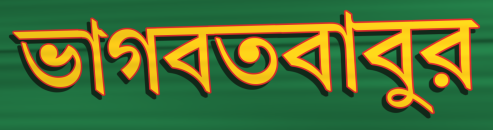
ভাগবতবাবুর